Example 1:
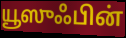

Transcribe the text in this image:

யூஸுஃபின்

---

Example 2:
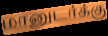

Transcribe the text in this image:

மானுடர்க்கு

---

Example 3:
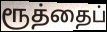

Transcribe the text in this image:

ரூத்தைப்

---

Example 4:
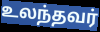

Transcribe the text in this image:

உலந்தவர்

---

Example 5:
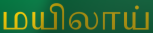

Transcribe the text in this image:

மயிலாய்